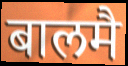
बालमै